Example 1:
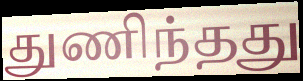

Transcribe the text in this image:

துணிந்தது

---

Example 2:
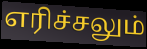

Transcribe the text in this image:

எரிச்சலும்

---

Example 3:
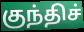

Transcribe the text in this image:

குந்திச்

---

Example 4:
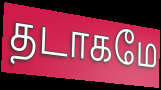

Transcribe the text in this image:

தடாகமே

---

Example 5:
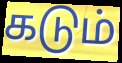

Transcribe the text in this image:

கடும்